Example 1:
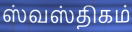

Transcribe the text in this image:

ஸ்வஸ்திகம்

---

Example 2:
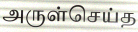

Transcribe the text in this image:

அருள்செய்த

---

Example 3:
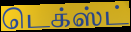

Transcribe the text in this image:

டெக்ஸ்ட்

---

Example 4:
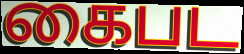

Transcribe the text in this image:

கைபட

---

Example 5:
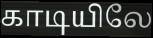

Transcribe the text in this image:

காடியிலே